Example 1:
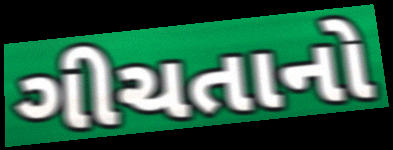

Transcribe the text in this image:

ગીચતાનો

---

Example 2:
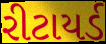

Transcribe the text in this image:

રીટાયર્ડ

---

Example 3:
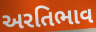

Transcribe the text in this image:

અરતિભાવ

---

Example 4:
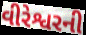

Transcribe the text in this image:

વીરેશ્વરની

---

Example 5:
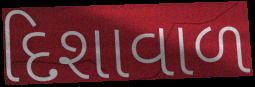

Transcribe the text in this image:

દિશાવાળ